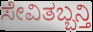
ಸೇವಿತಬ್ಬನ್ತಿ